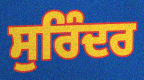
ਸੁਰਿੰਦਰ